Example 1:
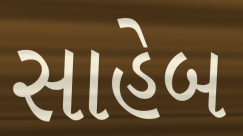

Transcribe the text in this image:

સાહેબ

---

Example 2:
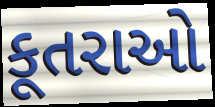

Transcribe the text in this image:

કૂતરાઓ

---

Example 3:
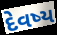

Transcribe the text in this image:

દેવષ્ય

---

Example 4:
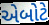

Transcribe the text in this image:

એબોટે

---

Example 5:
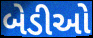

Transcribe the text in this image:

બેડીઓ